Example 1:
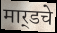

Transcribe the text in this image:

मार्डचे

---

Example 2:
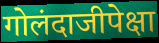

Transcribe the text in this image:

गोलंदाजीपेक्षा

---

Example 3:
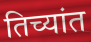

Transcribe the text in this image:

तिच्यांत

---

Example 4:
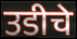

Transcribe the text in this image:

उडीचे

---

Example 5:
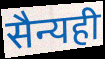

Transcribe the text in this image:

सैन्यही